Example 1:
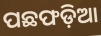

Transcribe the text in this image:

ପଛଫଡ଼ିଆ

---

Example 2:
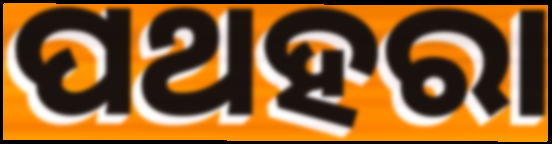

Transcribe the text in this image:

ପଥହରା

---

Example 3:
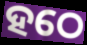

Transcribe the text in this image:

ହଠେ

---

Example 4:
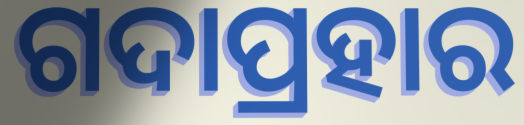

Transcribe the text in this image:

ଗଦାପ୍ରହାର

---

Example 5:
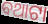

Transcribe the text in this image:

ବଥାଟା